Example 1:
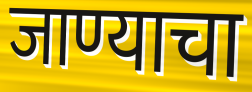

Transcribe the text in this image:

जाण्‍याचा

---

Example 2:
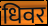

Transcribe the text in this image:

धिवर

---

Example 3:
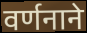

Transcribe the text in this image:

वर्णनाने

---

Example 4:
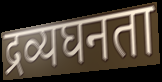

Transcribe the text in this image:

द्रव्यघनता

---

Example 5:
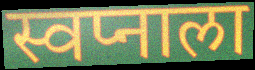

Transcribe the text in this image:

स्वप्नाला